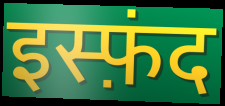
इस्फ़ंद